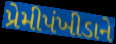
પ્રેમીપંખીડાને